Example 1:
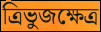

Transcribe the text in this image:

ত্রিভুজক্ষেত্র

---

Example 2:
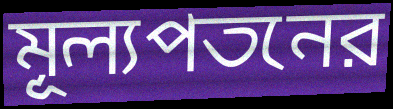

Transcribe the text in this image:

মূল্যপতনের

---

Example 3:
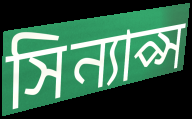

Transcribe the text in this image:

সিন্যাপ্স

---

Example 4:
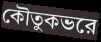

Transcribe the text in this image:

কৌতুকভরে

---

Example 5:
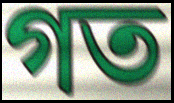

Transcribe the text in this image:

গত